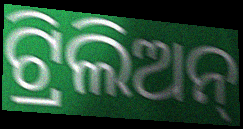
ଟ୍ରିଲିଅନ୍